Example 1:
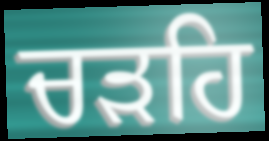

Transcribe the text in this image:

ਚੜਹਿ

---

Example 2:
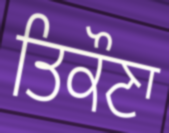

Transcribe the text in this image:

ਤਿਕੌਣਾ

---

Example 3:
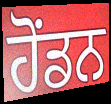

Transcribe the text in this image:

ਹੋਂਡਨ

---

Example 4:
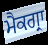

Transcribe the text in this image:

ਮੈਕਗ੍ਰਾ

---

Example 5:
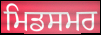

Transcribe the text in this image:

ਮਿਡਸਮਰ